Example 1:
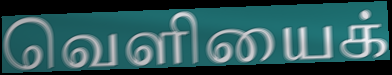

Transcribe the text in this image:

வெளியைக்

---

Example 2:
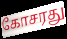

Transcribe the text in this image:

கோசரது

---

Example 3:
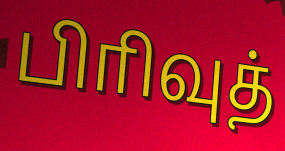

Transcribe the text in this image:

பிரிவுத்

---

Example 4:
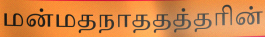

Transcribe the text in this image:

மன்மதநாததத்தரின்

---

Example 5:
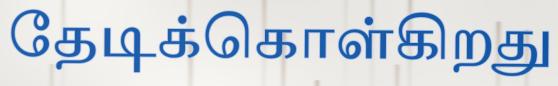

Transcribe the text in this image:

தேடிக்கொள்கிறது